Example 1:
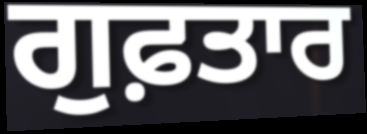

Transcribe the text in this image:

ਗੁਫ਼ਤਾਰ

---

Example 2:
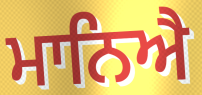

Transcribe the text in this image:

ਮਾਨਿਐ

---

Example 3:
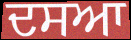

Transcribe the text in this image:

ਦਸਆ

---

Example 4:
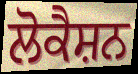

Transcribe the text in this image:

ਲੋਕੈਸ਼ਨ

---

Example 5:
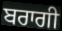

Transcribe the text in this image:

ਬਰਾਗੀ